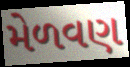
મેળવણ